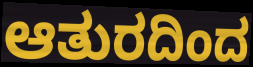
ಆತುರದಿಂದ